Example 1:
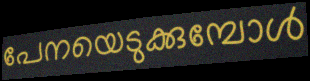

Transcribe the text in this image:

പേനയെടുക്കുമ്പോൾ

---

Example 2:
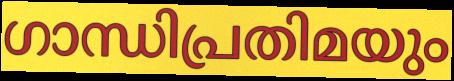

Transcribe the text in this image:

ഗാന്ധിപ്രതിമയും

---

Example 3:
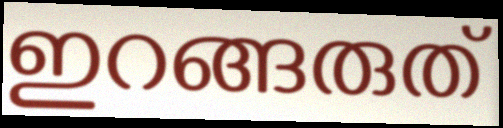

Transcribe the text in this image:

ഇറങ്ങരുത്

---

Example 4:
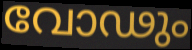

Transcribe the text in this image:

വോഢും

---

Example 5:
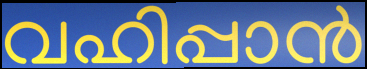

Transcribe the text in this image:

വഹിപ്പാൻ